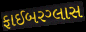
ફાઈબરગ્લાસ